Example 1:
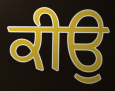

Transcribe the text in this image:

ਕੀਉ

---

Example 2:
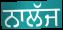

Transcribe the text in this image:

ਨਾਲੱਜ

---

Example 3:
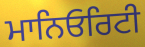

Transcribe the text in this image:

ਮਾਨਿਓਰਿਟੀ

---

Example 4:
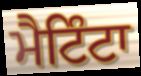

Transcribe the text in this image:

ਮੈਟਿੰਟਾ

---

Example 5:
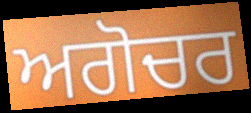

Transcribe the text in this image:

ਅਗੋਚਰ